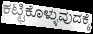
ಕಟ್ಟಿಕೊಳ್ಳುವುದಕ್ಕೆ